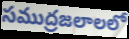
సముద్రజలాలలో